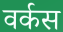
वर्कस